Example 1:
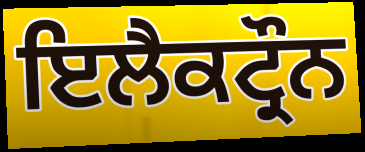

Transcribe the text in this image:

ਇਲੈਕਟ੍ਰੌਨ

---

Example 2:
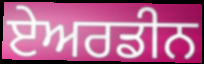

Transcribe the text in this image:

ਏਅਰਡੀਨ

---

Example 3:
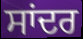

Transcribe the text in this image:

ਸਾਂਦਰ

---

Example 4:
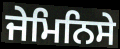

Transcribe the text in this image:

ਜੇਮਿਨਿਸੇ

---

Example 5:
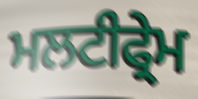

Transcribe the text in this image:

ਮਲਟੀਫ੍ਰੇਮ